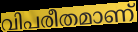
വിപരീതമാണ്